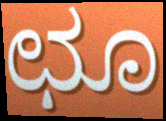
ಛೂ